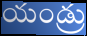
యండ్రు